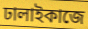
ঢালাইকাজে